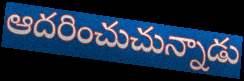
ఆదరించుచున్నాడు